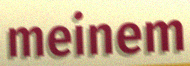
meinem